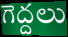
గెద్దలు